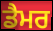
ਡੈਮਰ